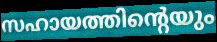
സഹായത്തിന്റെയും